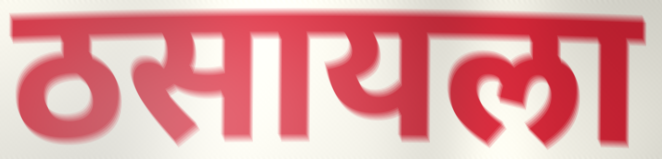
ठसायला